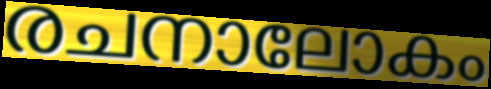
രചനാലോകം